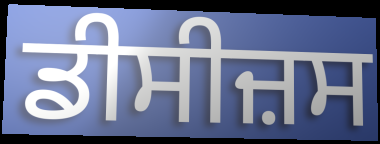
ਡੀਸੀਜ਼ਸ